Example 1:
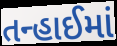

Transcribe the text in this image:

તન્હાઈમાં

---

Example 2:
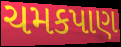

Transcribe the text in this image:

ચમકપાણ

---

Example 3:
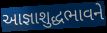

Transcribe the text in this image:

આજ્ઞાશુદ્ધભાવને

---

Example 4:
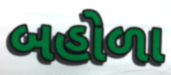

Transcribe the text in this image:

બહોળા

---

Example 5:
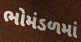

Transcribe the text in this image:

ભોમંડળમાં